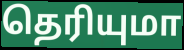
தெரியுமா